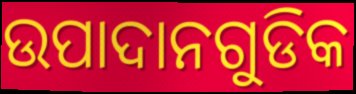
ଉପାଦାନଗୁଡିକ